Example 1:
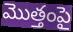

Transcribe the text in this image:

మొత్తంపై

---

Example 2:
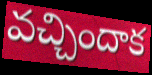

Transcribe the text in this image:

వచ్చిందాక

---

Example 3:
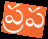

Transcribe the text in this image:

ప్రప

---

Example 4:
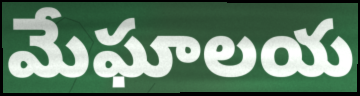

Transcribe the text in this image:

మేఘాలయ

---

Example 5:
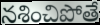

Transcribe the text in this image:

నశించిపోతే